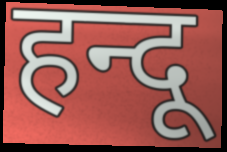
हन्दू